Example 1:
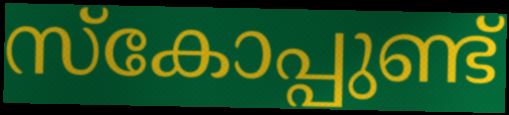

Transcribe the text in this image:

സ്കോപ്പുണ്ട്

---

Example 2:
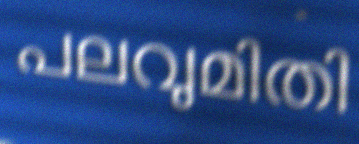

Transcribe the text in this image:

പലവുമിതി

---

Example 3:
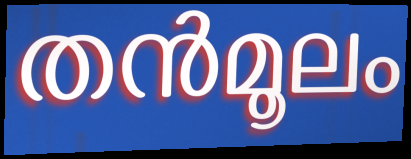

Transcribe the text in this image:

തൻമൂലം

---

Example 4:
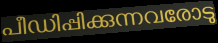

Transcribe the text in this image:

പീഡിപ്പിക്കുന്നവരോടു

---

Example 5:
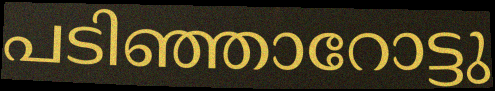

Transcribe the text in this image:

പടിഞ്ഞാറോട്ടു